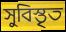
সুবিস্তৃত